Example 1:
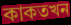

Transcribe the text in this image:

কাকতখন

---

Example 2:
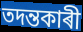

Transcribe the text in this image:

তদন্তকাৰী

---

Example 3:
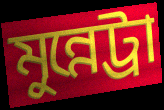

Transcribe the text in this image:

মুন্নেট্ৰা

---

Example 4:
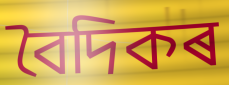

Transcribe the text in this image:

বৈদিকৰ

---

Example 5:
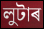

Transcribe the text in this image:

লুটাৰ